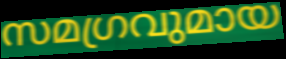
സമഗ്രവുമായ